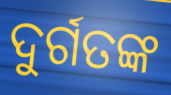
ଦୁର୍ଗତଙ୍କ